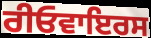
ਰੀਓਵਾਇਰਸ